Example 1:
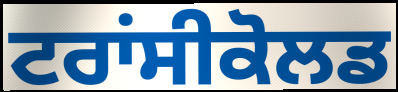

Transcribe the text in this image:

ਟਰਾਂਸੀਕੋਲਡ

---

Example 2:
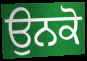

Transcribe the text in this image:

ਉਨਕੋ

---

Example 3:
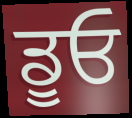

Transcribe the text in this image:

ਡੂਓ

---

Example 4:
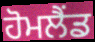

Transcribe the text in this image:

ਹੋਮਲੈਂਡ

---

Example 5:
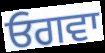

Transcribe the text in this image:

ਓਗਵਾ